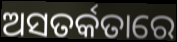
ଅସତର୍କତାରେ